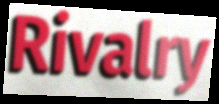
Rivalry